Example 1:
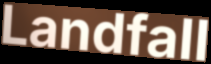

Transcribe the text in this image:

Landfall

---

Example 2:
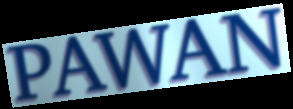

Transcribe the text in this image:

PAWAN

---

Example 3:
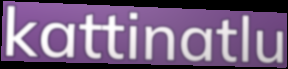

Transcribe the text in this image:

kattinatlu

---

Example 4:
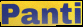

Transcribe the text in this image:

Panti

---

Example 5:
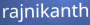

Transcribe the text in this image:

rajnikanth